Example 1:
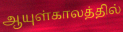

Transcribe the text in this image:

ஆயுள்காலத்தில்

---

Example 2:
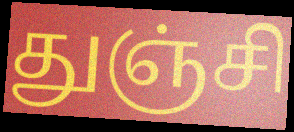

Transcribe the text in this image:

துஞ்சி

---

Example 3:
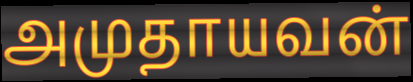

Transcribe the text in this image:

அமுதாயவன்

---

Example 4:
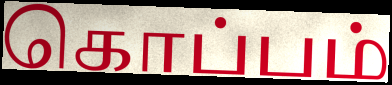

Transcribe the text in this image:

கொப்பம்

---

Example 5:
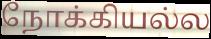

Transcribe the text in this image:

நோக்கியல்ல